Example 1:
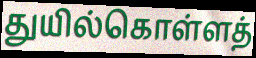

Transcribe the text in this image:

துயில்கொள்ளத்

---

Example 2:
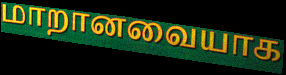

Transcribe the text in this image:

மாறானவையாக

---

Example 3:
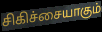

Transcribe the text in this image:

சிகிச்சையாகும்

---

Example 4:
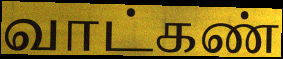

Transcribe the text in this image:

வாட்கண்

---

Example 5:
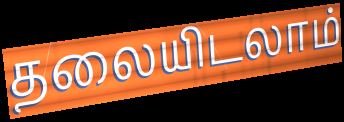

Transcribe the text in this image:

தலையிடலாம்